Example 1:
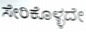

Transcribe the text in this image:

ಸೇರಿಕೊಳ್ಳದೇ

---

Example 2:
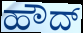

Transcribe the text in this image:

ಹೌದ್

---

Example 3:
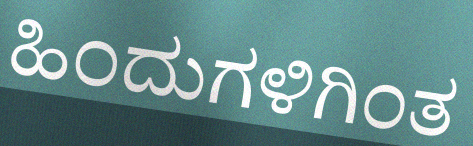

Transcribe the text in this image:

ಹಿಂದುಗಳಿಗಿಂತ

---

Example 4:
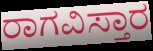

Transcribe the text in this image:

ರಾಗವಿಸ್ತಾರ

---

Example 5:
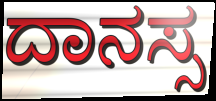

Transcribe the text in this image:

ದಾನಸ್ಸ